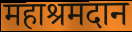
महाश्रमदान